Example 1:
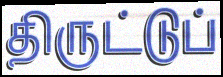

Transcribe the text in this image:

திருட்டுப்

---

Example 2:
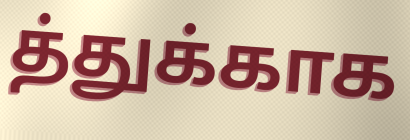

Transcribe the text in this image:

த்துக்காக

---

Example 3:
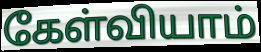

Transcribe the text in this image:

கேள்வியாம்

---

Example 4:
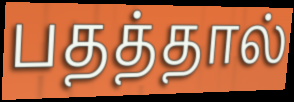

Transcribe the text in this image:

பதத்தால்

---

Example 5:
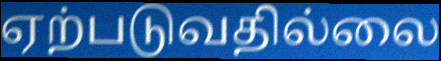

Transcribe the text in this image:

ஏற்படுவதில்லை